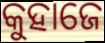
କୁହାଜେ